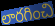
లారగించి